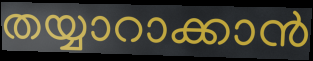
തയ്യാറാക്കാൻ